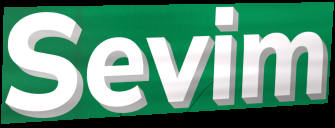
Sevim